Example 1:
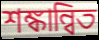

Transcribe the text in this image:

শঙ্কান্বিত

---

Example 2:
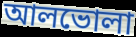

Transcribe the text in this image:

আলভোলা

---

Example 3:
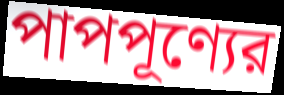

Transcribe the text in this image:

পাপপূণ্যের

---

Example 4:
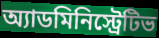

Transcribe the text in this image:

অ্যাডমিনিস্ট্রেটিভ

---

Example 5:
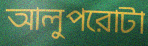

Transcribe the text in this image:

আলুপরোটা